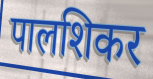
पालशिकर